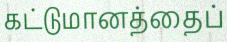
கட்டுமானத்தைப்